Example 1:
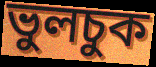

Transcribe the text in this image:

ভুলচুক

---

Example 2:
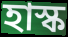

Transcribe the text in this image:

হাস্ক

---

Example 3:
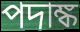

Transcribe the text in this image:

পদাঙ্ক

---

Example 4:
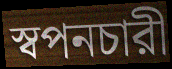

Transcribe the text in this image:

স্বপনচারী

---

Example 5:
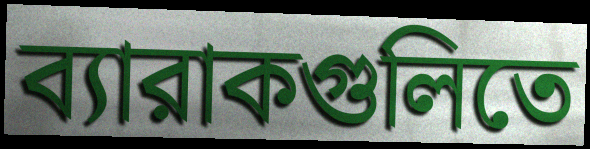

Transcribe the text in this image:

ব্যারাকগুলিতে